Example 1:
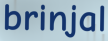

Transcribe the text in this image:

brinjal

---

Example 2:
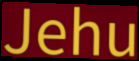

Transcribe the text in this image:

Jehu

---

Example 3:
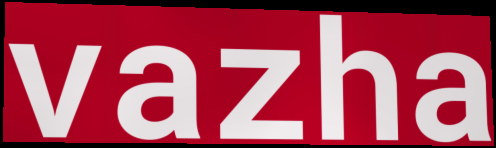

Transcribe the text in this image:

vazha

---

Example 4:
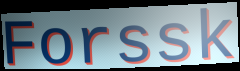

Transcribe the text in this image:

Forssk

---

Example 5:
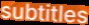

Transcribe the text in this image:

subtitles